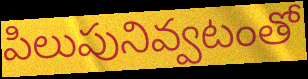
పిలుపునివ్వటంతో